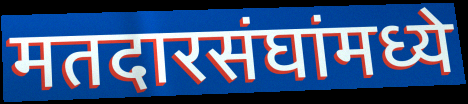
मतदारसंघांमध्ये